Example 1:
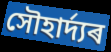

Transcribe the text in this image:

সৌহাৰ্দ্যৰ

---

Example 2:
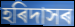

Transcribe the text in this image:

হৰিদাসৰ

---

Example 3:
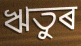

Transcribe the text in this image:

ঋতুৰ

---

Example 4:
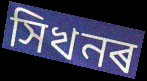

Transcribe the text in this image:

সিখনৰ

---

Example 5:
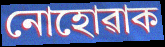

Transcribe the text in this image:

নোহোৱাক